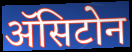
ॲसिटोन